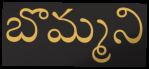
బొమ్మని